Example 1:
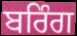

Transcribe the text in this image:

ਬਰਿੰਗ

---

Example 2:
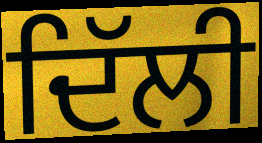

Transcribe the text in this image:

ਦਿੱਲੀ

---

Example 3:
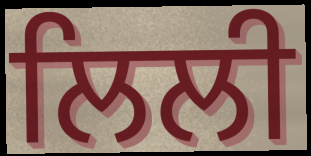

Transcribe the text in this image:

ਲਿਲੀ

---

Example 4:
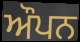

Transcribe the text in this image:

ਔਪਨ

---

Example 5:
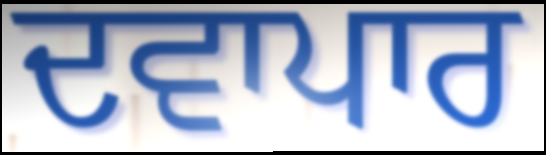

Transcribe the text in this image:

ਦਵਾਪਾਰ